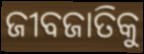
ଜୀବଜାତିକୁ